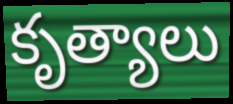
కృత్యాలు